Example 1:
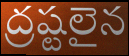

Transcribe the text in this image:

ద్రష్టలైన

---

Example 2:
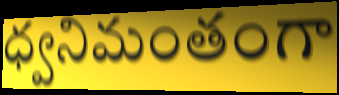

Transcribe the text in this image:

ధ్వనిమంతంగా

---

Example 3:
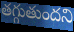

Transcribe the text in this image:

తగ్గుతుందని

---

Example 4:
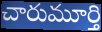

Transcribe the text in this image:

చారుమూర్తి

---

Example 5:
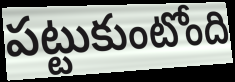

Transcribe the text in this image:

పట్టుకుంటోంది